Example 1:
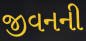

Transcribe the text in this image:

જીવનની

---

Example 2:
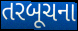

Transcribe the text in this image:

તરબૂચના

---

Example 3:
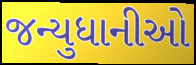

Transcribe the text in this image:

જન્યુધાનીઓ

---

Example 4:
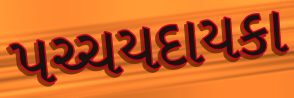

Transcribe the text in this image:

પચ્ચયદાયકા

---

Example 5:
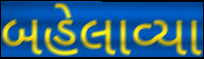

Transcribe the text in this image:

બહેલાવ્યા